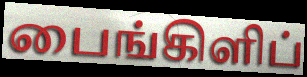
பைங்கிளிப்